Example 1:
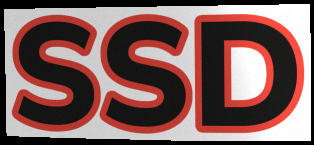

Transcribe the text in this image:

SSD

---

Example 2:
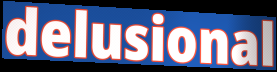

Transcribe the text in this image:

delusional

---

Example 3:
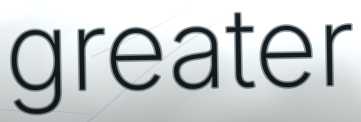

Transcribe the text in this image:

greater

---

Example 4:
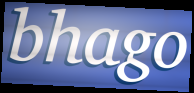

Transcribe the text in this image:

bhago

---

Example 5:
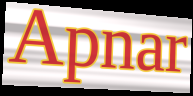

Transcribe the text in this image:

Apnar